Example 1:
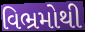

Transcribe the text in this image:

વિભ્રમોથી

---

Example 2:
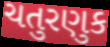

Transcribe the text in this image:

ચતુરણુક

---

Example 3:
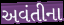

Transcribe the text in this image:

અવંતીના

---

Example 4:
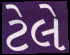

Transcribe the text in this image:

ટેલે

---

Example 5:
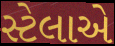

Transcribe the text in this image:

સ્ટેલાએ